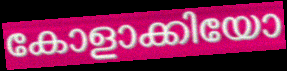
കോളാക്കിയോ